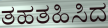
ತಹತಹಿಸಿದ